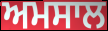
ਅਮਸਾਲ